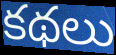
కథలు